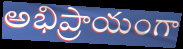
అభిప్రాయంగా